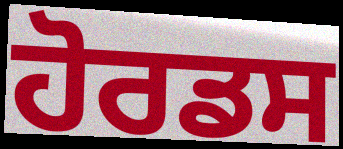
ਹੋਰਡਸ